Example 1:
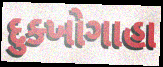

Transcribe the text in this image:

દુક્ખોગાહા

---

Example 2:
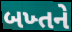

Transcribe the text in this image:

બખ્તને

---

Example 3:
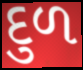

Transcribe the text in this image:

દુળ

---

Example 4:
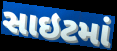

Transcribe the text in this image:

સાઇટમાં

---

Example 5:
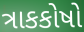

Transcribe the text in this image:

ત્રાકકોષો